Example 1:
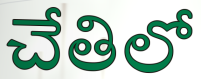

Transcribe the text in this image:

చేతిలో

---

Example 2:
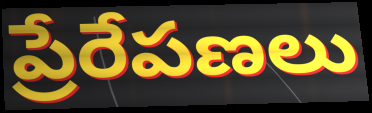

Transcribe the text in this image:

ప్రేరేపణలు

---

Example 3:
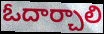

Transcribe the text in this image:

ఓదార్చాలి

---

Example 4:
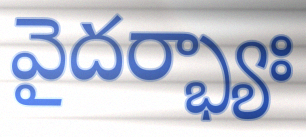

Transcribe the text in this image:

వైదర్భ్యాః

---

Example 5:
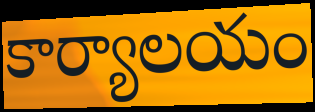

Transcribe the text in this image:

కార్యాలయం